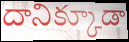
దానిక్కూడా